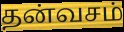
தன்வசம்